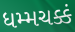
ધમ્મચક્કં